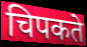
चिपकते